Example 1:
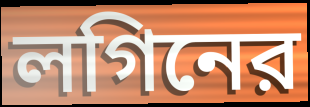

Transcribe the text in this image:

লগিনের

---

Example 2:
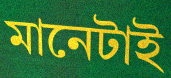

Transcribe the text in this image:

মানেটাই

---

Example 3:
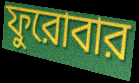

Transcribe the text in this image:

ফুরোবার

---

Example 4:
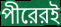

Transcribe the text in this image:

পীরেরই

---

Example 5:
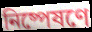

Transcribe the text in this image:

নিষ্পেষণে